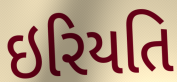
ઇરિયતિ